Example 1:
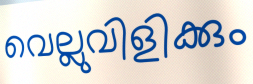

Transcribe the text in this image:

വെല്ലുവിളിക്കും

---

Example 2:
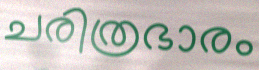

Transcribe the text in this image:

ചരിത്രഭാരം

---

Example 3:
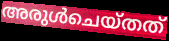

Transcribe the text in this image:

അരുൾചെയ്തത്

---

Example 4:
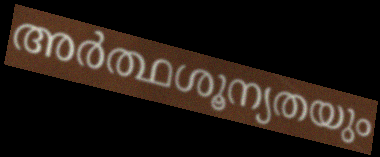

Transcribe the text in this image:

അർത്ഥശൂന്യതയും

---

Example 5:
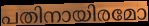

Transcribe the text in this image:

പതിനായിരമോ